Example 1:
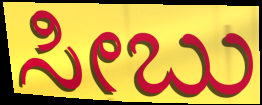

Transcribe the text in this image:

ಸೀಬು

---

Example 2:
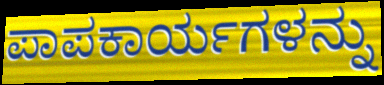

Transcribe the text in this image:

ಪಾಪಕಾರ್ಯಗಳನ್ನು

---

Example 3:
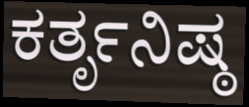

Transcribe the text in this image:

ಕರ್ತೃನಿಷ್ಠ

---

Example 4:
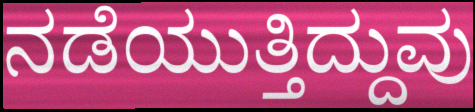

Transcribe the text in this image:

ನಡೆಯುತ್ತಿದ್ದುವು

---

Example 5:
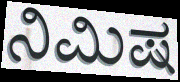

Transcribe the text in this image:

ನಿಮಿಷ